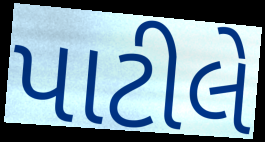
પાટીલે